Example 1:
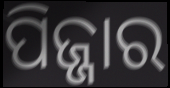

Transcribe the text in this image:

ପିଜ୍ଜାର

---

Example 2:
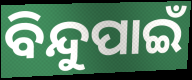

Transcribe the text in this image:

ବିନ୍ଦୁପାଇଁ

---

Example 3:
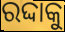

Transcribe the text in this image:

ରଦ୍ଦାକୁ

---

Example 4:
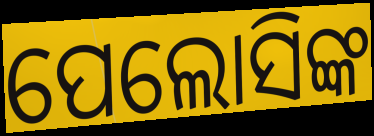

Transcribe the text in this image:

ପେଲୋସିଙ୍କ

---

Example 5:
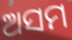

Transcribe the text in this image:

ଅସମ